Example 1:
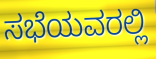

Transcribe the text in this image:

ಸಭೆಯವರಲ್ಲಿ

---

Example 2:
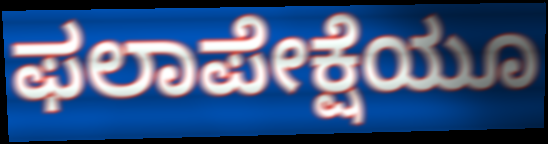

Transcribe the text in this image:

ಫಲಾಪೇಕ್ಷೆಯೂ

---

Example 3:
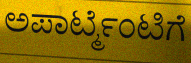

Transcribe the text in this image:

ಅಪಾರ್ಟ್ಮೆಂಟಿಗೆ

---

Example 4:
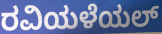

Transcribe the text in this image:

ರವಿಯಳೆಯಲ್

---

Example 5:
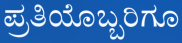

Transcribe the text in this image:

ಪ್ರತಿಯೊಬ್ಬರಿಗೂ